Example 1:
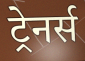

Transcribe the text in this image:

ट्रेनर्स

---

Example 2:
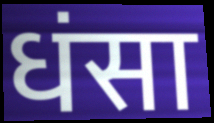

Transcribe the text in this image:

धंसा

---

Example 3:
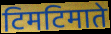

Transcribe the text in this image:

टिमटिमाते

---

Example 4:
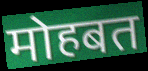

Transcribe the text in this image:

मोहबत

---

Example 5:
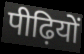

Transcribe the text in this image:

पीढ़ियों